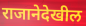
राजानेदेखील